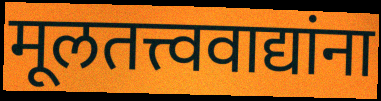
मूलतत्त्ववाद्यांना